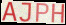
AJPH